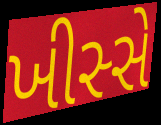
ખીસ્સે